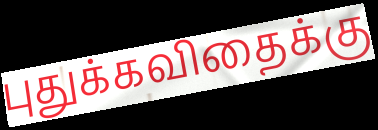
புதுக்கவிதைக்கு